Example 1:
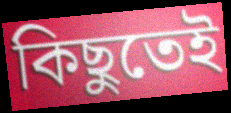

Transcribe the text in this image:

কিছুতেই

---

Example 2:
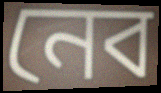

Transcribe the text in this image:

নেব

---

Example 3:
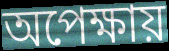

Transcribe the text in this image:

অপেক্ষায়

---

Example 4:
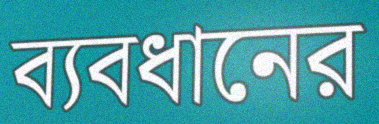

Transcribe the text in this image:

ব্যবধানের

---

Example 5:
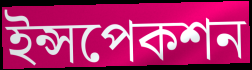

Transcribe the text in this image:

ইন্সপেকশন